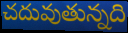
చదువుతున్నది